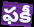
ఫకీ